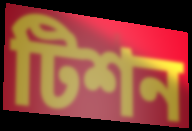
টিশন